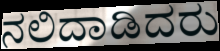
ನಲಿದಾಡಿದರು